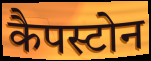
कैपस्टोन